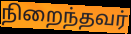
நிறைந்தவர்